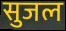
सुजल